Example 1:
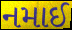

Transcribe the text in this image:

નમાઈ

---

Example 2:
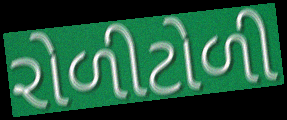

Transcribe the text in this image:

રોળીટોળી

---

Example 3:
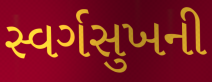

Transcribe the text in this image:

સ્વર્ગસુખની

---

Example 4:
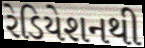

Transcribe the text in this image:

રેડિયેશનથી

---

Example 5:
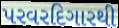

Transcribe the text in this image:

પરવરદિગારથી